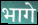
भागे